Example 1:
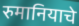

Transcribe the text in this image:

रुमानियाचे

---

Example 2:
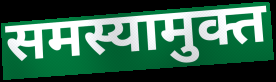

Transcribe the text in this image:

समस्यामुक्त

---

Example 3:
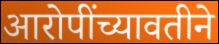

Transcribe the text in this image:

आरोपींच्यावतीने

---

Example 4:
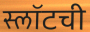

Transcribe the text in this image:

स्लॉटची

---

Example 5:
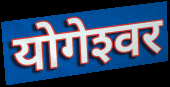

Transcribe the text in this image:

योगेश्‍वर